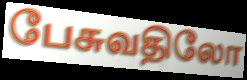
பேசுவதிலோ